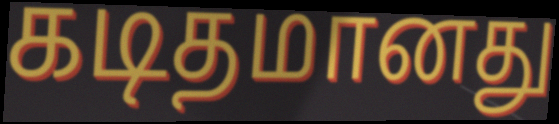
கடிதமானது